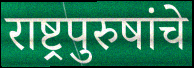
राष्ट्रपुरुषांचे